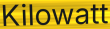
Kilowatt